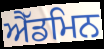
ਐੱਡਮਿਨ